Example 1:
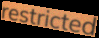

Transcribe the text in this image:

restricted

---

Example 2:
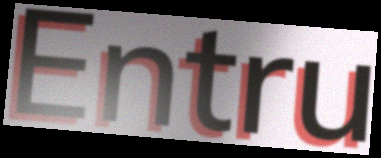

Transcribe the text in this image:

Entru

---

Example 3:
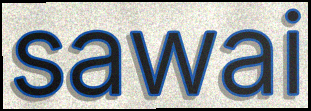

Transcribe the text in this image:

sawai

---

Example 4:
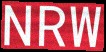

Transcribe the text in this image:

NRW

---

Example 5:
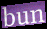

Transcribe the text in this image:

bun